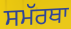
ਸਮੱਰਥਾ